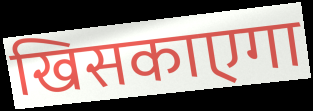
खिसकाएगा